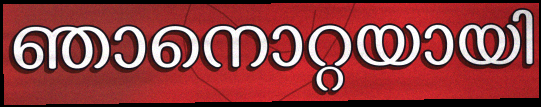
ഞാനൊറ്റയായി